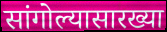
सांगोल्यासारख्या